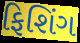
ફિશિંગ